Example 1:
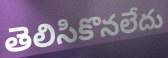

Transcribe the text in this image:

తెలిసికొనలేదు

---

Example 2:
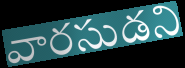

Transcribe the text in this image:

వారసుడని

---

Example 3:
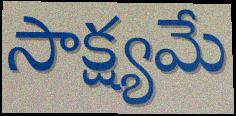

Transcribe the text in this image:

సాక్ష్యమే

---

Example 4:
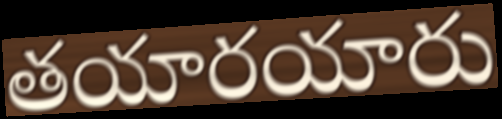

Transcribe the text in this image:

తయారయారు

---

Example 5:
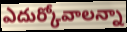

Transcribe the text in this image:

ఎదుర్కోవాలన్నా